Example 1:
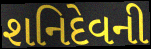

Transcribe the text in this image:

શનિદેવની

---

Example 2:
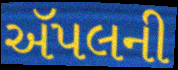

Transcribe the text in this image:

ઍપલની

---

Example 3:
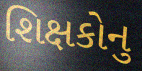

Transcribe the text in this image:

શિક્ષકોનુ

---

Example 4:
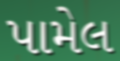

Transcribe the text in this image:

પામેલ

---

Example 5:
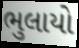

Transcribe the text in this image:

ભુલાયો